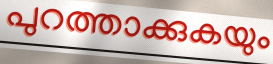
പുറത്താക്കുകയും